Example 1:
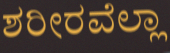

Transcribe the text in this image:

ಶರೀರವೆಲ್ಲಾ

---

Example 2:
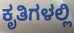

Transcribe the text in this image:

ಕೃತಿಗಳಲ್ಲಿ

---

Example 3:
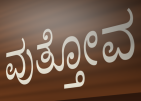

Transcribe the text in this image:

ವುತ್ತೋವ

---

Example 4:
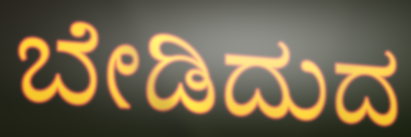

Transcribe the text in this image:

ಬೇಡಿದುದ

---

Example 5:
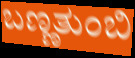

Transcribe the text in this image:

ಬಣ್ಣತುಂಬಿ